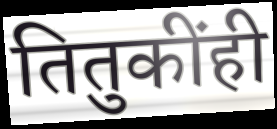
तितुकींही